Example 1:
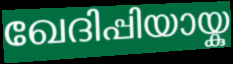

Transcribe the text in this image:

ഖേദിപ്പിയായ്കു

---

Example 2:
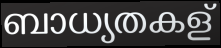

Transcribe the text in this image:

ബാധ്യതകള്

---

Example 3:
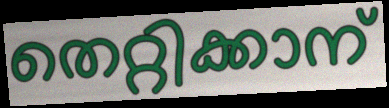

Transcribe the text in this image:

തെറ്റിക്കാന്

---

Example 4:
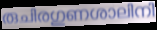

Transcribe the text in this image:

രുചിരഗുണശാലിനി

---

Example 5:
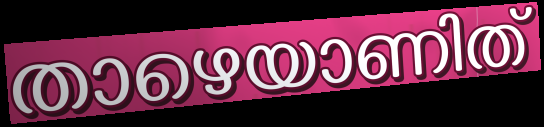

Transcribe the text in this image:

താഴെയാണിത്